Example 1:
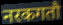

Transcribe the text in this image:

नरकगतौ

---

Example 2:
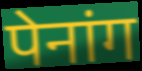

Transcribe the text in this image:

पेनांग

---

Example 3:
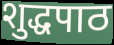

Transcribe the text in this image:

शुद्धपाठ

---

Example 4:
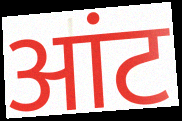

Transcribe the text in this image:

आंट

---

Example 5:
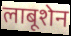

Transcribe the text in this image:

लाबूशेन